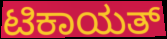
ಟಿಕಾಯತ್